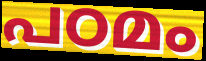
പഠമം